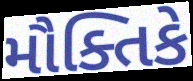
મૌક્તિકે